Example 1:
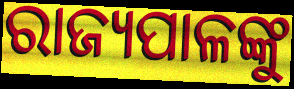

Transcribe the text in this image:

ରାଜ୍ୟପାଳଙ୍କୁ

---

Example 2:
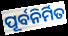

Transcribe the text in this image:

ପୂର୍ବନିର୍ମିତ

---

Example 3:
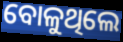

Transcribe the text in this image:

ବୋଳୁଥିଲେ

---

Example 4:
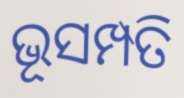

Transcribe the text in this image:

ଭୂସମ୍ପତି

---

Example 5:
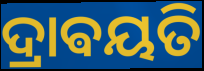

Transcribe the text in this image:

ଦ୍ରାଵୟତି